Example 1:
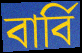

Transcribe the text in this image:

বার্বি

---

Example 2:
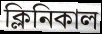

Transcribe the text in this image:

ক্লিনিকাল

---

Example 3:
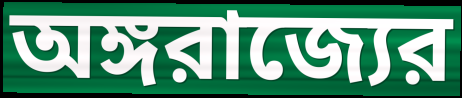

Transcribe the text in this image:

অঙ্গরাজ্যের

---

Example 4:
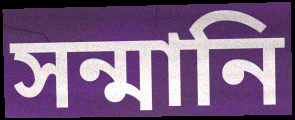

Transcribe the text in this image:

সন্মানি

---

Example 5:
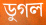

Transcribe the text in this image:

ডুগল